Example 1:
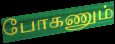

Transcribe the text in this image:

போகணும்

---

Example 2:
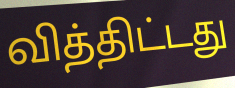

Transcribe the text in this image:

வித்திட்டது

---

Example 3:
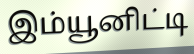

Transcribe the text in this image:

இம்யூனிட்டி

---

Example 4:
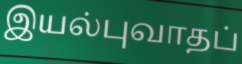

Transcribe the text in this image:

இயல்புவாதப்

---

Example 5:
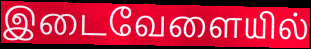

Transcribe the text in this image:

இடைவேளையில்